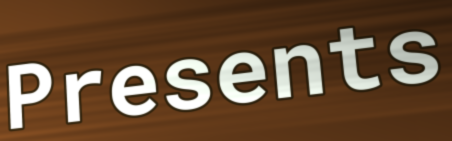
Presents